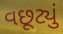
વછૂટ્યું